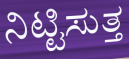
ನಿಟ್ಟಿಸುತ್ತ